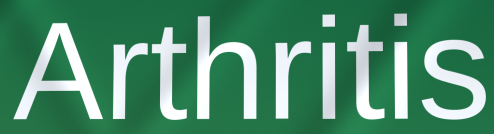
Arthritis